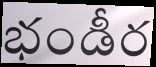
భండీర